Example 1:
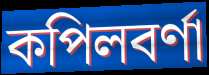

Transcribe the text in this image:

কপিলবর্ণা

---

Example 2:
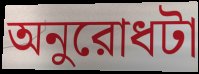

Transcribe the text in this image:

অনুরোধটা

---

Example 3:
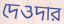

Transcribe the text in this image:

দেওদার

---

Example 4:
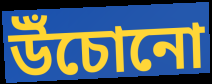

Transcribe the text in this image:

উঁচোনো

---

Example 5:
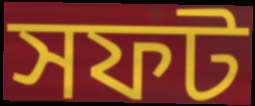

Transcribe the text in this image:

সফট